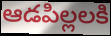
ఆడపిల్లలకి